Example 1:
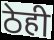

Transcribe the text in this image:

ठेही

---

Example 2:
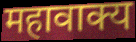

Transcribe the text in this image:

महावाक्य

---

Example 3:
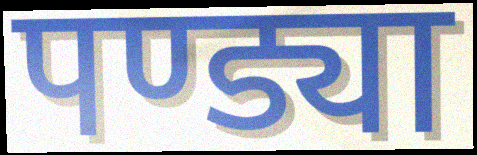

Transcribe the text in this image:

पण्ड्या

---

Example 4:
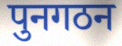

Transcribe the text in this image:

पुनगठन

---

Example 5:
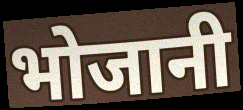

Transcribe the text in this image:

भोजानी